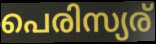
പെരിസ്യര്